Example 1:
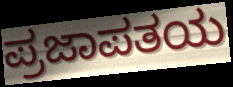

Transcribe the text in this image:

ಪ್ರಜಾಪತಯ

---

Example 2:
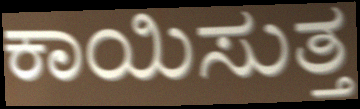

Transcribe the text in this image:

ಕಾಯಿಸುತ್ತ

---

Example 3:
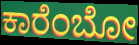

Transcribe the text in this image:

ಕಾರೆಂಬೋ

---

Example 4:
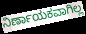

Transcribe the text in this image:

ನಿರ್ಣಾಯಕವಾಗಿಲ್ಲ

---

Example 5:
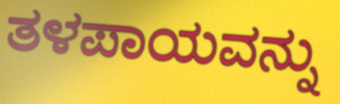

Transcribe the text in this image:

ತಳಪಾಯವನ್ನು